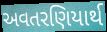
અવતરણિયાર્થ